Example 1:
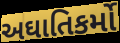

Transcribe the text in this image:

અઘાતિકર્મો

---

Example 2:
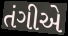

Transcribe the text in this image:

તંગીએ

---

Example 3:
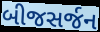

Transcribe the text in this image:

બીજસર્જન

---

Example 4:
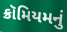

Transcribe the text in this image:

ક્રૉમિયમનું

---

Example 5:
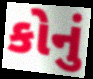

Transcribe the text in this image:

કોનું